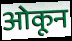
ओकून